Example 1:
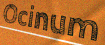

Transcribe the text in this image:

Ocinum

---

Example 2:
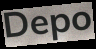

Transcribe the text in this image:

Depo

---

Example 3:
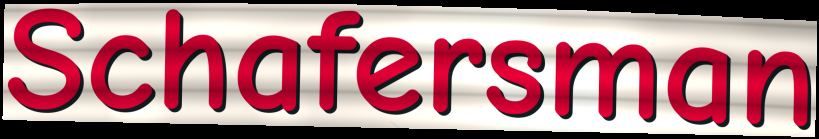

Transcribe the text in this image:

Schafersman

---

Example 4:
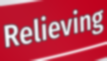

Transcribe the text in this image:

Relieving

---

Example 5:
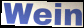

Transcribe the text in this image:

Wein